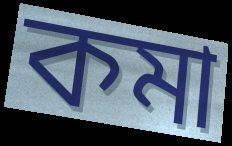
কমা